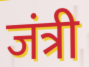
जंत्री